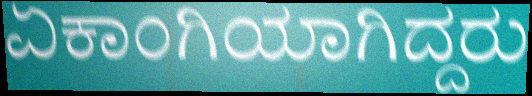
ಏಕಾಂಗಿಯಾಗಿದ್ದರು